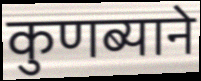
कुणब्याने